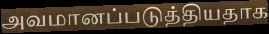
அவமானப்படுத்தியதாக